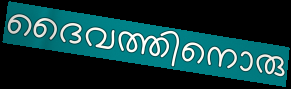
ദൈവത്തിനൊരു